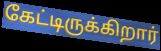
கேட்டிருக்கிறார்